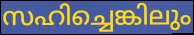
സഹിച്ചെങ്കിലും